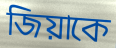
জিয়াকে